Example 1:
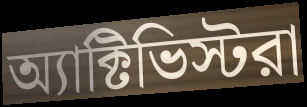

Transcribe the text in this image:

অ্যাক্টিভিস্টরা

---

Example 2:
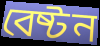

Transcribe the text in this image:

বেষ্টন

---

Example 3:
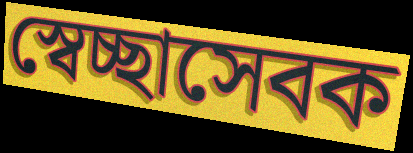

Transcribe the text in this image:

স্বেচ্ছাসেবক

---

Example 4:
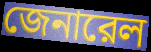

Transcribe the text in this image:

জেনারেল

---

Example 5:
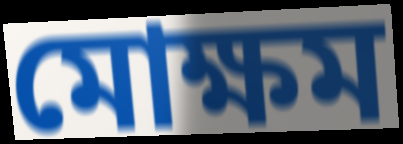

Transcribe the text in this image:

মোক্ষম